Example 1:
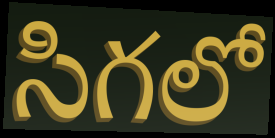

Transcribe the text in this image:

సిగలో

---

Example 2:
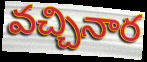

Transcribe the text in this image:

వచ్చినార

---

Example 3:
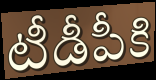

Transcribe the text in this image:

టీడీపీకి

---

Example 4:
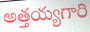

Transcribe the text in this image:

అత్తయ్యగారి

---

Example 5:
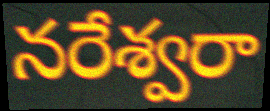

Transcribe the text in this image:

నరేశ్వరా